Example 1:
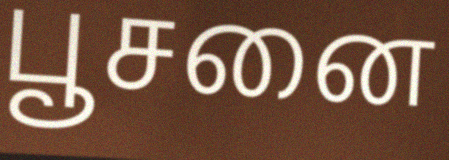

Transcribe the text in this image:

பூசனை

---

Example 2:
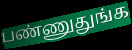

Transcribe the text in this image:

பண்ணுதுங்க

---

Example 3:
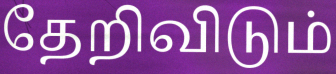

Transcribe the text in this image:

தேறிவிடும்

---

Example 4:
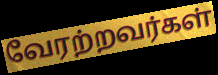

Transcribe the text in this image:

வேரற்றவர்கள்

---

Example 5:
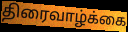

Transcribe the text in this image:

திரைவாழ்க்கை